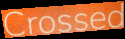
Crossed